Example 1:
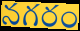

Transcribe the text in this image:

నగరం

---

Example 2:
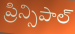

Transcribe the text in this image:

ప్రిన్సిపాల్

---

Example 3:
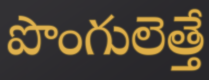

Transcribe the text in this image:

పొంగులెత్తే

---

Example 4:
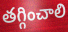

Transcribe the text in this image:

తగ్గించాలి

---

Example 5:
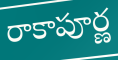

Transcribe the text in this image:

రాకాపూర్ణ